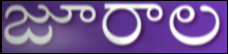
జూరాల